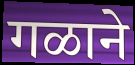
गळाने